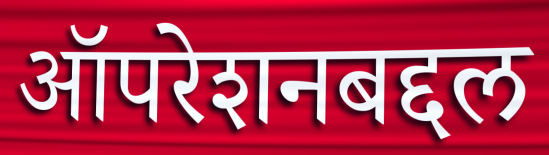
ऑपरेशनबद्दल